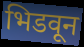
भिडवून